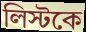
লিস্টকে